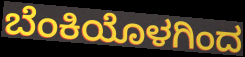
ಬೆಂಕಿಯೊಳಗಿಂದ